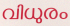
വിധുരം